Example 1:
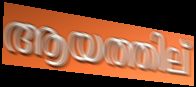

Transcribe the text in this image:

ആയത്തില്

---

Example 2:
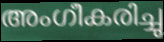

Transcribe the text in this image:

അംഗീകരിച്ചു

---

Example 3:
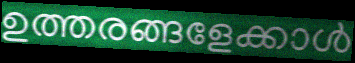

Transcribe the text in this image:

ഉത്തരങ്ങളേക്കാൾ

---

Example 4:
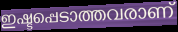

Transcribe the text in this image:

ഇഷ്ടപ്പെടാത്തവരാണ്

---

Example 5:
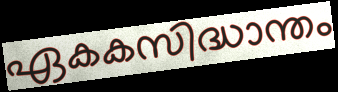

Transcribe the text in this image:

ഏകകസിദ്ധാന്തം